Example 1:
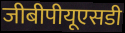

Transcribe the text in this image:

जीबीपीयूएसडी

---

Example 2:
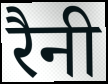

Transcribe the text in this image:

रैनी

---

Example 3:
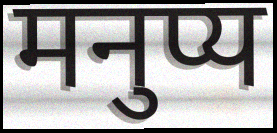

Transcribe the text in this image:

मनुप्य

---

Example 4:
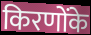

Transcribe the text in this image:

किरणोंके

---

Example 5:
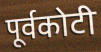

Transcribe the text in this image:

पूर्वकोटी